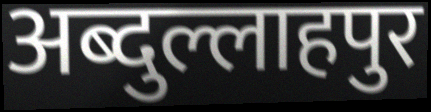
अब्दुल्लाहपुर